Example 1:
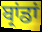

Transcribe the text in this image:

ਬ੍ਰਾਂਡਾਂ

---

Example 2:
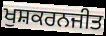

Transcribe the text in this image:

ਖੁਸ਼ਕਰਨਜੀਤ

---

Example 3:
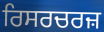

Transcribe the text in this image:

ਰਿਸਰਚਰਜ਼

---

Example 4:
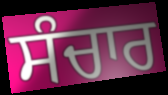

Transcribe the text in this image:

ਸੰਚਾਰ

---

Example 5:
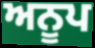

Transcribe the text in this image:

ਅਨੂਪ